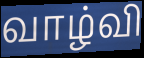
வாழ்வி